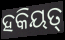
ହକିୟତ୍